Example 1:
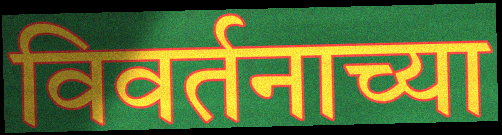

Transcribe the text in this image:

विवर्तनाच्या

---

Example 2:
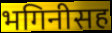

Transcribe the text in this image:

भगिनीसह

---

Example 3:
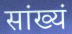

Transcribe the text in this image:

सांख्यं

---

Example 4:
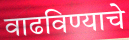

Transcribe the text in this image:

वाढविण्याचे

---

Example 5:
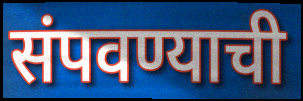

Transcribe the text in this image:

संपवण्याची